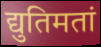
द्युतिमतां